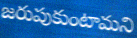
జరుపుకుంటామని